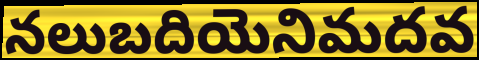
నలుబదియెనిమదవ